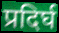
प्रदिर्घ